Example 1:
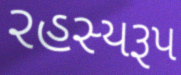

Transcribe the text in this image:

રહસ્યરૂપ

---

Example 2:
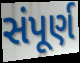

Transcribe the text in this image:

સંપૂર્ણ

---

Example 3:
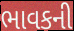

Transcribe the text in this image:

ભાવકની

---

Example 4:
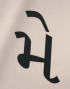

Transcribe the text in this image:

મે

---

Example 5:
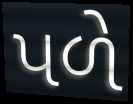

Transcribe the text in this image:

પળે